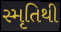
સ્મૃતિથી